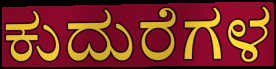
ಕುದುರೆಗಳ